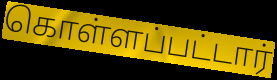
கொள்ளப்பட்டார்